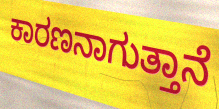
ಕಾರಣನಾಗುತ್ತಾನೆ